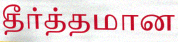
தீர்த்தமான